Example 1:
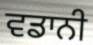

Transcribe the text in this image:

ਵਡਾਨੀ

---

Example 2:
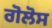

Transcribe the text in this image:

ਗੋਲੋਸ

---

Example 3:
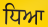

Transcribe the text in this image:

ਧਿਆ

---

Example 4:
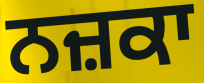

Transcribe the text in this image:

ਨਜ਼ਕਾ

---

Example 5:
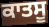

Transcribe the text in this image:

ਕਾਤਸੂ